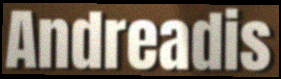
Andreadis